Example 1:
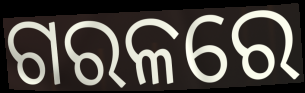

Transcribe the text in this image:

ଗରଳରେ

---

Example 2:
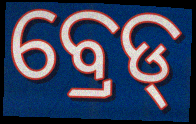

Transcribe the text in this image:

ବ୍ରେଡ୍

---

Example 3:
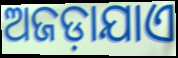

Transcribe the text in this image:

ଅଜଡ଼ାଯାଏ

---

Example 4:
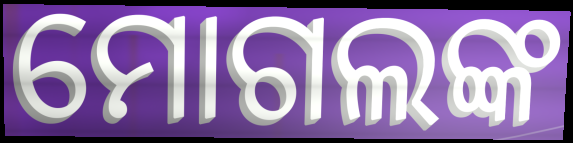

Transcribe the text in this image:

ମୋଗଲଙ୍କ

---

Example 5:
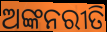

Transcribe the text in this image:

ଅଙ୍କନରୀତି